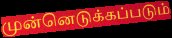
முன்னெடுக்கப்படும்